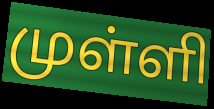
முள்ளி